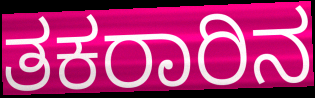
ತಕರಾರಿನ